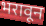
भरावून